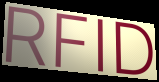
RFID